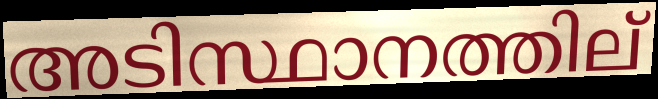
അടിസ്ഥാനത്തില്